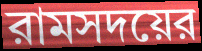
রামসদয়ের